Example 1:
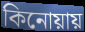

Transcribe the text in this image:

কিনোয়ায়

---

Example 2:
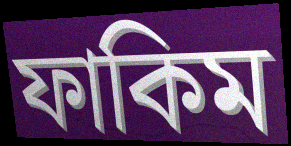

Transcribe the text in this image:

ফাকিম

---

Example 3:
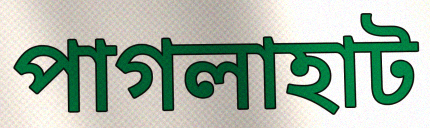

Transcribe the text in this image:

পাগলাহাট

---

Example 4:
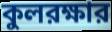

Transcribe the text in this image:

কুলরক্ষার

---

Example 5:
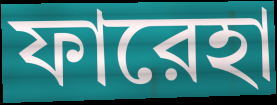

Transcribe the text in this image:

ফারেহা